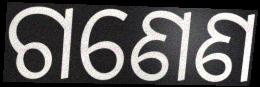
ଗଣେଣ